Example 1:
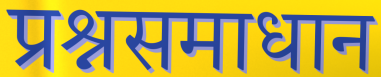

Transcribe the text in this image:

प्रश्नसमाधान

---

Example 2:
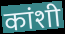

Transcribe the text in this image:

कांशी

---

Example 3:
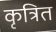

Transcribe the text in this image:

कृत्रित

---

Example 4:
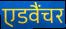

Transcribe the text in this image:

एडवैंचर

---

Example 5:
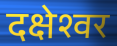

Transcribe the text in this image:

दक्षेश्वर